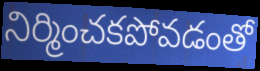
నిర్మించకపోవడంతో